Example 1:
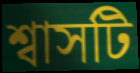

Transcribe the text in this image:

শ্বাসটি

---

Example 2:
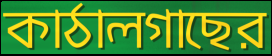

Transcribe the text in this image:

কাঠালগাছের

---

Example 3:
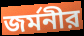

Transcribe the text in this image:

জর্মনীর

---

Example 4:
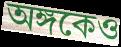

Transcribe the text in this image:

অঙ্গকেও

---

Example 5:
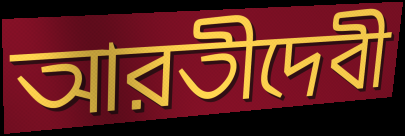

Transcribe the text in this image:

আরতীদেবী